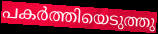
പകർത്തിയെടുത്തു